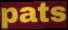
pats